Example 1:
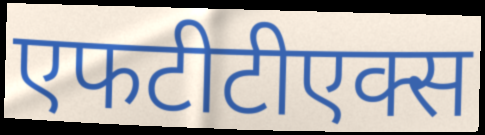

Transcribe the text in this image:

एफटीटीएक्स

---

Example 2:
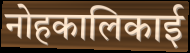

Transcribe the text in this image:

नोहकालिकाई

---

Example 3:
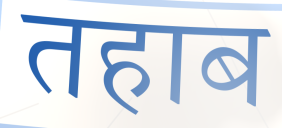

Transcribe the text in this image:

तहाब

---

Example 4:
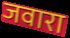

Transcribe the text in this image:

जवारा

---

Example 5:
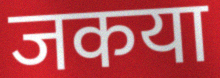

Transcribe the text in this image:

जकया